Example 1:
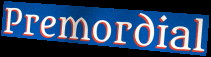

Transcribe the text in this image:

Premordial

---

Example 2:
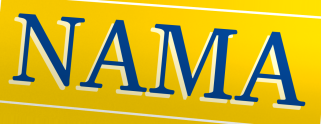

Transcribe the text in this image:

NAMA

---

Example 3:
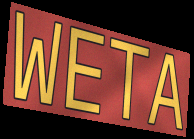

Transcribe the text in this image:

WETA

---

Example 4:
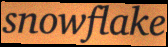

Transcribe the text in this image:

snowflake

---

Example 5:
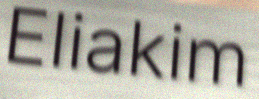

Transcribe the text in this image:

Eliakim